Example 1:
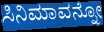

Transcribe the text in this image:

ಸಿನಿಮಾವನ್ನೋ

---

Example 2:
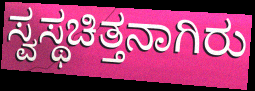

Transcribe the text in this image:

ಸ್ವಸ್ಥಚಿತ್ತನಾಗಿರು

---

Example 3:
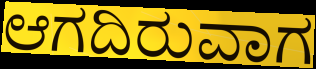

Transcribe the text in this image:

ಆಗದಿರುವಾಗ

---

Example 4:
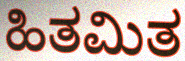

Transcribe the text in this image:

ಹಿತಮಿತ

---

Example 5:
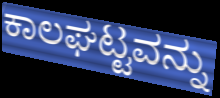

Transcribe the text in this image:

ಕಾಲಘಟ್ಟವನ್ನು